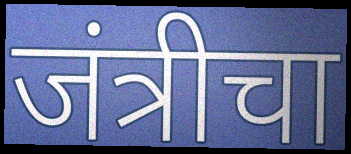
जंत्रीचा